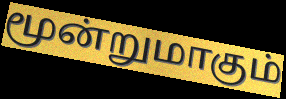
மூன்றுமாகும்